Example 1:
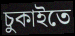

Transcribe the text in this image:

চুকাইতে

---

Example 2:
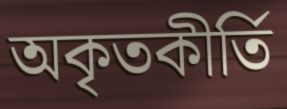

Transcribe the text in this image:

অকৃতকীর্তি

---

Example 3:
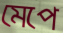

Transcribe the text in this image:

মেপে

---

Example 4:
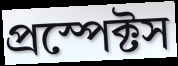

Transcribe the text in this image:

প্রস্পেক্টস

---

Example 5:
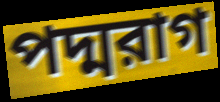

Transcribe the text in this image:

পদ্মরাগ